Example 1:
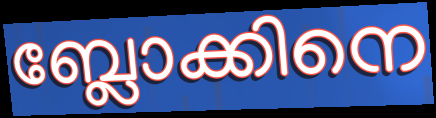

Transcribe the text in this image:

ബ്ലോക്കിനെ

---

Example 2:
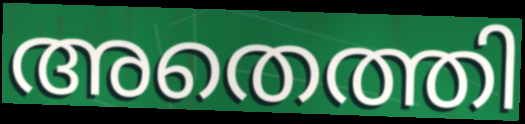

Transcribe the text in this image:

അതെത്തി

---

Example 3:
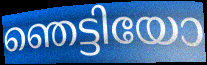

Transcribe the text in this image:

ഞെട്ടിയോ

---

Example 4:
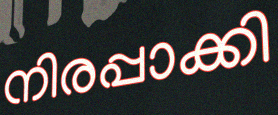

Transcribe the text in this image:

നിരപ്പാക്കി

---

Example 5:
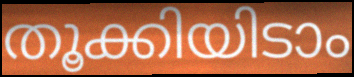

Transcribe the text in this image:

തൂക്കിയിടാം